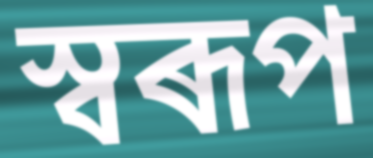
স্বৰূপ